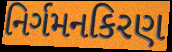
નિર્ગમનકિરણ